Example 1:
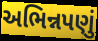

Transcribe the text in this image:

અભિન્નપણું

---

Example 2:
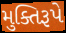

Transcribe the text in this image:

મુક્તિરૂપે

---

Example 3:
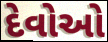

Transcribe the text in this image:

દેવોઓ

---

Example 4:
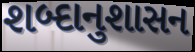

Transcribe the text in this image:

શબ્દાનુશાસન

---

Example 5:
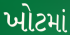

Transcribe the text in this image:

ખોટમાં